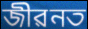
জীৱনত